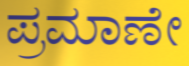
ಪ್ರಮಾಣೇ